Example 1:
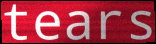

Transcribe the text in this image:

tears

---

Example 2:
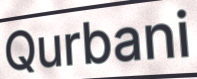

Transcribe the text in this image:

Qurbani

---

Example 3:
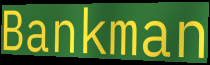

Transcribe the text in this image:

Bankman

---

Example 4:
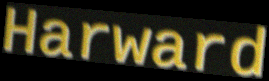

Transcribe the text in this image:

Harward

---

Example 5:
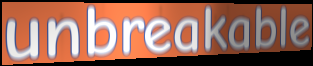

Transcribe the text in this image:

unbreakable